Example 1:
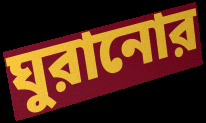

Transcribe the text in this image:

ঘুরানোর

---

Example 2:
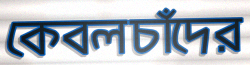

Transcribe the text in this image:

কেবলচাঁদের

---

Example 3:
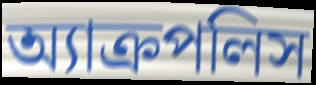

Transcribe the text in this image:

অ্যাক্রপলিস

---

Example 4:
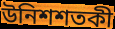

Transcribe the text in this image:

উনিশশতকী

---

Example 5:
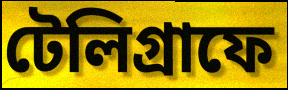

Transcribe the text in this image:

টেলিগ্রাফে